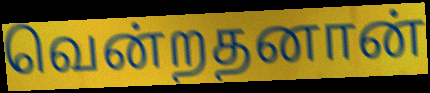
வென்றதனான்